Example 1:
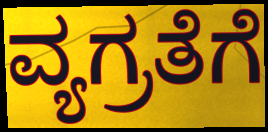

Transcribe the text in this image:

ವ್ಯಗ್ರತೆಗೆ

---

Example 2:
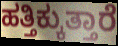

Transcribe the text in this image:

ಹತ್ತಿಕ್ಕುತ್ತಾರೆ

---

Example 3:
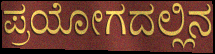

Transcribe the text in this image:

ಪ್ರಯೋಗದಲ್ಲಿನ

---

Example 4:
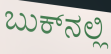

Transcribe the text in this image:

ಬುಕ್‌ನಲ್ಲಿ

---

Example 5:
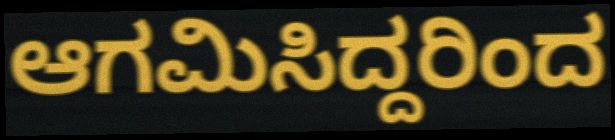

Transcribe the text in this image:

ಆಗಮಿಸಿದ್ದರಿಂದ